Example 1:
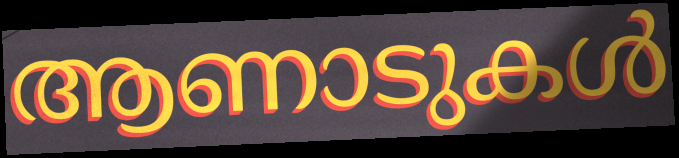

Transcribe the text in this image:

ആണാടുകൾ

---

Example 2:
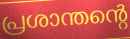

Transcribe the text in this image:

പ്രശാന്തന്റെ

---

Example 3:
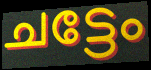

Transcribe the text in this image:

ചട്ടേം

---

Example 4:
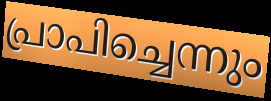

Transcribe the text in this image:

പ്രാപിച്ചെന്നും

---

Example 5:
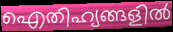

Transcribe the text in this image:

ഐതിഹ്യങ്ങളിൽ